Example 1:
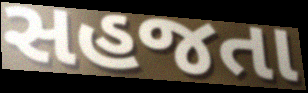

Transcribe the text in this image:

સહજતા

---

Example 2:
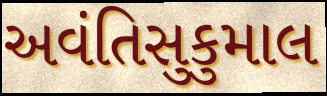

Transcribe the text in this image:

અવંતિસુકુમાલ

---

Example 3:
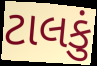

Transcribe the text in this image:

ટાલકું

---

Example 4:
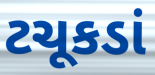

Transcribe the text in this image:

ટચૂકડાં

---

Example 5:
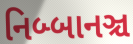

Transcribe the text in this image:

નિબ્બાનઞ્ચ